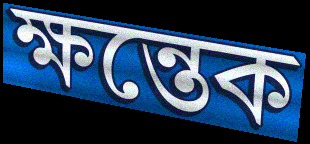
ক্ষন্তেক